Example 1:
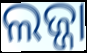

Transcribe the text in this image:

ଲଜ୍ଜା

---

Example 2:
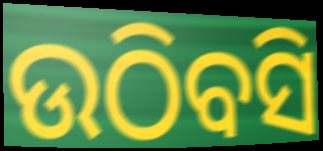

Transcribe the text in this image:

ଉଠିବସି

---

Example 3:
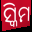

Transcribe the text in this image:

ସ୍କିମ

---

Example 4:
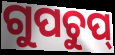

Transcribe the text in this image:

ଗୁପଚୁପ୍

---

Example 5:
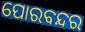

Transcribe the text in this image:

ପୋରବନ୍ଦର